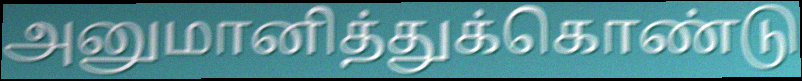
அனுமானித்துக்கொண்டு